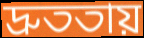
দ্রুততায়